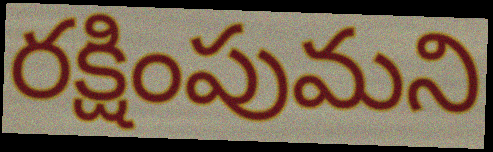
రక్షింపుమని